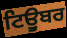
ਟਿਊੁਬਰ